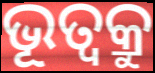
ଭୂତ୍ଵକ୍ରୁ